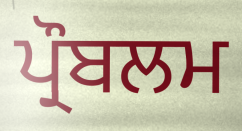
ਪ੍ਰੌਬਲਮ